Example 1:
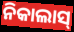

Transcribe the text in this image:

ନିକାଲାସ୍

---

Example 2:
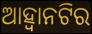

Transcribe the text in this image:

ଆହ୍ଵାନଟିର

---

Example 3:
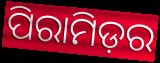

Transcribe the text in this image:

ପିରାମିଡ଼ର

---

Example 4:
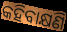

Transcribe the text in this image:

କହିବାକ୍ଷଣି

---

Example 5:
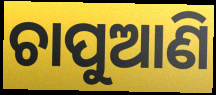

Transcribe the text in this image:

ଚାପୁଆଣି